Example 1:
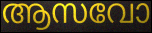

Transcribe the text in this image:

ആസവോ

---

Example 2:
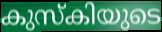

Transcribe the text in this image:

കുസ്കിയുടെ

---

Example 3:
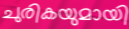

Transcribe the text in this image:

ചുരികയുമായി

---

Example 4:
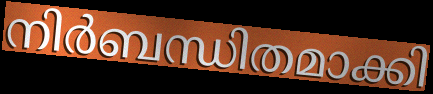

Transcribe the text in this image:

നിർബന്ധിതമാക്കി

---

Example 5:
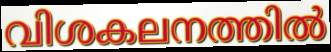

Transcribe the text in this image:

വിശകലനത്തിൽ